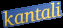
kantali